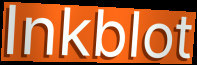
Inkblot